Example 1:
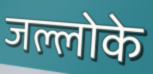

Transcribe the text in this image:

जल्लोके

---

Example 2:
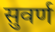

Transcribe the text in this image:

सुवर्ण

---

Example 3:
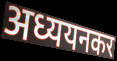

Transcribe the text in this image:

अध्ययनकर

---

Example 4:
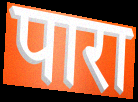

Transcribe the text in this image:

पारा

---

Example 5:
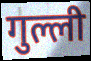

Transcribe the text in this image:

गुल्ली